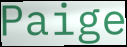
Paige